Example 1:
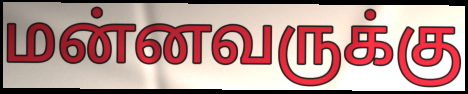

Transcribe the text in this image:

மன்னவருக்கு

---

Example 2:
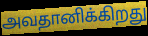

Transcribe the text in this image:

அவதானிக்கிறது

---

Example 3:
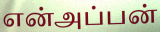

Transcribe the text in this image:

என்அப்பன்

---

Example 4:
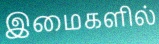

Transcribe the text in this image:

இமைகளில்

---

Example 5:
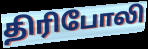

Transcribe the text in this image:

திரிபோலி